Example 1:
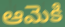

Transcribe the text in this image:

ఆమెకి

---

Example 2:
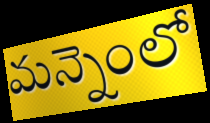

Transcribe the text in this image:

మన్నెంలో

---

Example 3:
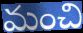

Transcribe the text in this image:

మంచి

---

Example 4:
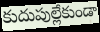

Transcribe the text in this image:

కుదుపుల్లేకుండా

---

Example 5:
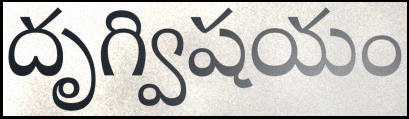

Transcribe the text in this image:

దృగ్విషయం